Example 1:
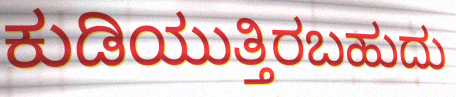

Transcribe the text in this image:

ಕುಡಿಯುತ್ತಿರಬಹುದು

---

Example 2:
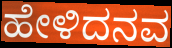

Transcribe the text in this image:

ಹೇಳಿದನವ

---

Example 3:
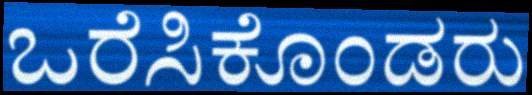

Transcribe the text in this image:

ಒರೆಸಿಕೊಂಡರು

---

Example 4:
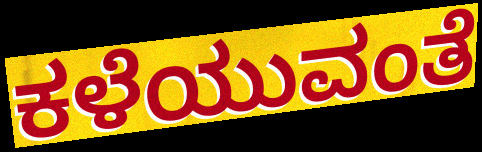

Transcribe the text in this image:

ಕಳೆಯುವಂತೆ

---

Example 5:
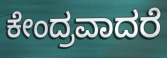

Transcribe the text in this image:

ಕೇಂದ್ರವಾದರೆ